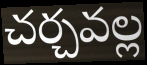
చర్చవల్ల